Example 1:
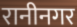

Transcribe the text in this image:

रानीनगर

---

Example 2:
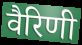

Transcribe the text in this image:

वैरिणी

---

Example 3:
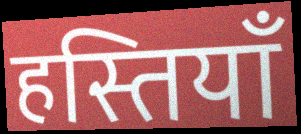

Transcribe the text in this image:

हस्तियॉं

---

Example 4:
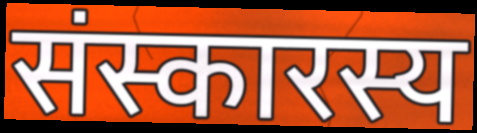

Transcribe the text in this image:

संस्कारस्य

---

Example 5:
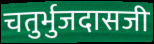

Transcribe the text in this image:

चतुर्भुजदासजी